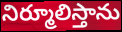
నిర్మూలిస్తాను